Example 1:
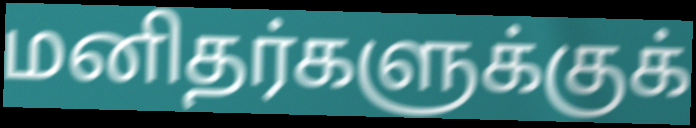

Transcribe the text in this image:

மனிதர்களுக்குக்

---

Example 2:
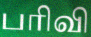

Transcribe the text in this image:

பரிவி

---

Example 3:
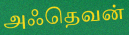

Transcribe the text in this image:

அஃதெவன்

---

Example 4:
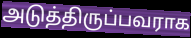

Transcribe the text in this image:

அடுத்திருப்பவராக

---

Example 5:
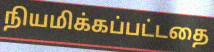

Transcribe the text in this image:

நியமிக்கப்பட்டதை